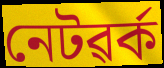
নেটৱৰ্ক